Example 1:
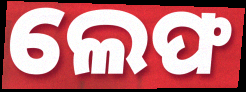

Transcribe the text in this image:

ଲେଫ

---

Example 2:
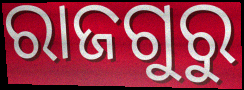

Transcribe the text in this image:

ରାଜଗୁରୁ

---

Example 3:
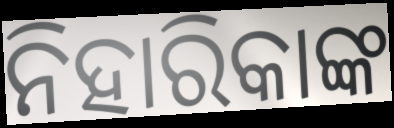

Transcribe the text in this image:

ନିହାରିକାଙ୍କ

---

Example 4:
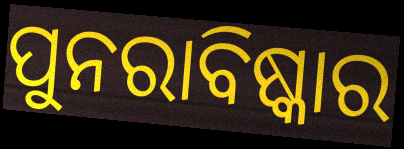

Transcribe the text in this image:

ପୁନରାବିଷ୍କାର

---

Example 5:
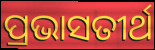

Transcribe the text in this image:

ପ୍ରଭାସତୀର୍ଥ